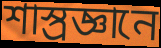
শাস্ত্রজ্ঞানে